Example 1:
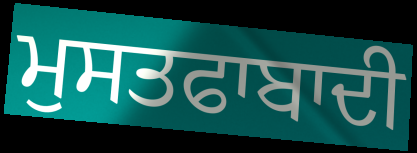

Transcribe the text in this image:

ਮੁਸਤਫਾਬਾਦੀ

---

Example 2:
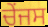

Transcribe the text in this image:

ਚੇਂਜਸ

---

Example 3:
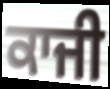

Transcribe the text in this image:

ਕਾਜੀ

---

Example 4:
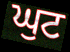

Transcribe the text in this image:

ਘੁਟ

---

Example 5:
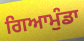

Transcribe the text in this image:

ਗਿਆਮੁੰਡਾ